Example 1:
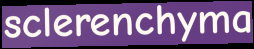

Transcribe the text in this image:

sclerenchyma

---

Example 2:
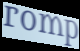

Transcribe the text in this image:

romp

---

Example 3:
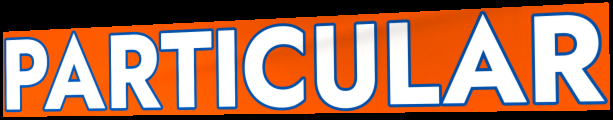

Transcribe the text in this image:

PARTICULAR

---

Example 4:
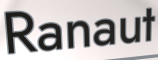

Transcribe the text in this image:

Ranaut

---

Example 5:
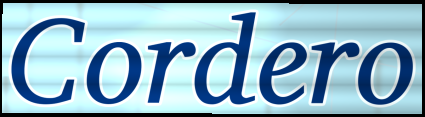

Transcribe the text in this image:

Cordero